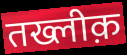
तख्लीक़